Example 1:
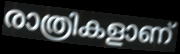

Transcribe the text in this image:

രാത്രികളാണ്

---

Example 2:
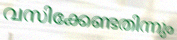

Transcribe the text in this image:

വസിക്കേണ്ടതിന്നും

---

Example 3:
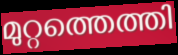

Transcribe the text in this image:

മുറ്റത്തെത്തി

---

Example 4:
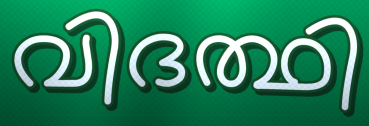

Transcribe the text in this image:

വിദത്ഥി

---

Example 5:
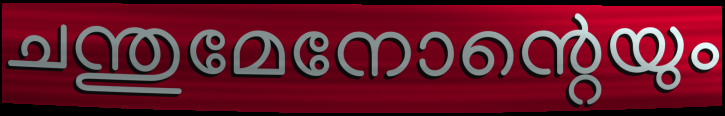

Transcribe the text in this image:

ചന്തുമേനോന്റെയും